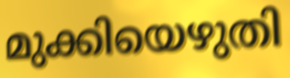
മുക്കിയെഴുതി